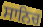
ਸਾਨਿਚ